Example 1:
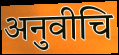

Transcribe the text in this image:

अनुवीचि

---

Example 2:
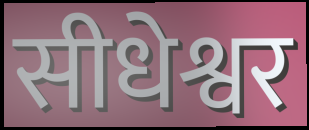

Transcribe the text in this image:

सीधेश्वर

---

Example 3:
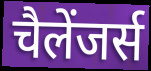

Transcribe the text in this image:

चैलेंजर्स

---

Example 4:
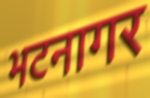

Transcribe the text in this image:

भटनागर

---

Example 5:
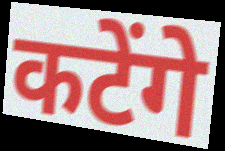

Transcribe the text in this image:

कटेंगे